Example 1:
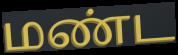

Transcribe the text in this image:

மண்ட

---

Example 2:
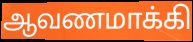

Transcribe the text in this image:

ஆவணமாக்கி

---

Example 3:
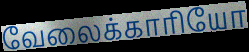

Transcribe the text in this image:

வேலைக்காரியோ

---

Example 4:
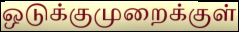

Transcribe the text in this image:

ஒடுக்குமுறைக்குள்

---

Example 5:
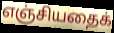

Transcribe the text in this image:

எஞ்சியதைக்